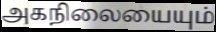
அகநிலையையும்